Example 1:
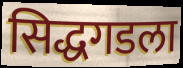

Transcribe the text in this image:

सिद्धगडला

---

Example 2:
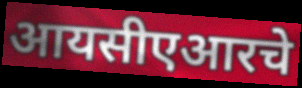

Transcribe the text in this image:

आयसीएआरचे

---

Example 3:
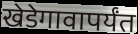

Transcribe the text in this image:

खेडेगावापर्यंत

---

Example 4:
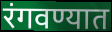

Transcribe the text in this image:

रंगवण्यात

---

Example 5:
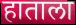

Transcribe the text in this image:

हाताला